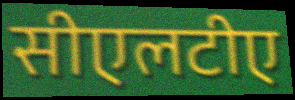
सीएलटीए